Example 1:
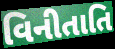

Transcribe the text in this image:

વિનીતાતિ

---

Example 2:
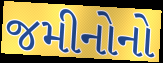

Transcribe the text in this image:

જમીનોનો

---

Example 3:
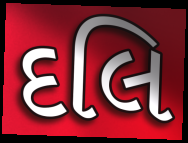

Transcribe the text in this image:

દલિ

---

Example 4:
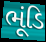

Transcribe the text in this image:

ભૂંડિ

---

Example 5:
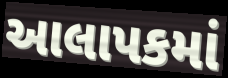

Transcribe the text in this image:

આલાપકમાં